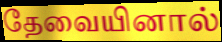
தேவையினால்